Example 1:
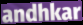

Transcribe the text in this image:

andhkar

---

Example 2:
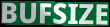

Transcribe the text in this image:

BUFSIZE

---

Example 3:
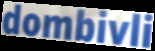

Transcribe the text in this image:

dombivli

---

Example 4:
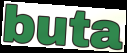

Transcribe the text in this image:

buta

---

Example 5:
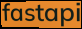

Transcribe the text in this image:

fastapi